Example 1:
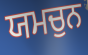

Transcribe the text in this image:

ਯਮਚੁਨ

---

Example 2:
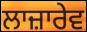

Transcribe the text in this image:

ਲਾਜ਼ਾਰੇਵ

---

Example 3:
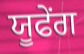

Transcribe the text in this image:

ਯੂਫੇਂਗ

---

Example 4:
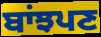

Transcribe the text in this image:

ਬਾਂਝਪਣ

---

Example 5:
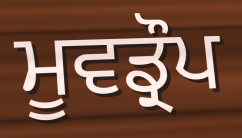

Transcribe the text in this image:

ਮੂਵਡ੍ਰੌਪ